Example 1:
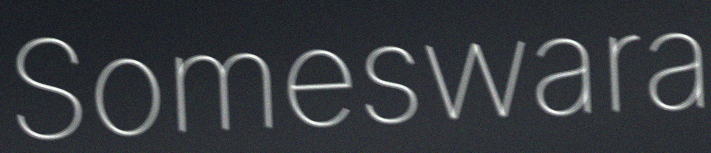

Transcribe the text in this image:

Someswara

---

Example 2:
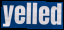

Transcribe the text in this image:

yelled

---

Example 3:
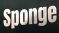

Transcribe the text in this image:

Sponge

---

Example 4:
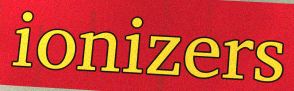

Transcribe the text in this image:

ionizers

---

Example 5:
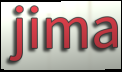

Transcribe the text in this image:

jima